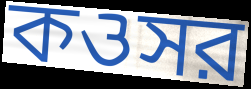
কওসর